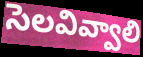
సెలవివ్వాలి